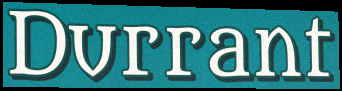
Durrant